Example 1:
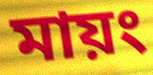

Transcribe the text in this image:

মায়ং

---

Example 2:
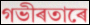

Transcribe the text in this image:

গভীৰতাৰে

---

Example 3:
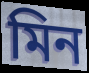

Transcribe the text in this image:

মিন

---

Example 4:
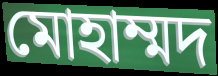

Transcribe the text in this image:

মোহাম্মদ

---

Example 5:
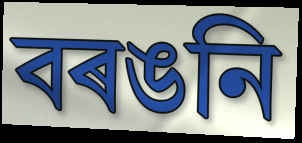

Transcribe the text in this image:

বৰঙনি